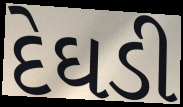
દેઘડી